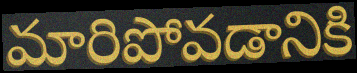
మారిపోవడానికి